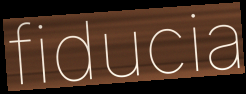
fiducia